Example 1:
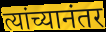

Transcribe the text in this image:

त्यांच्यानंतर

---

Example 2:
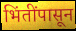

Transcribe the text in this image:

भिंतींपासून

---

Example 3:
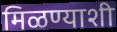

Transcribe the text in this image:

मिळण्याशी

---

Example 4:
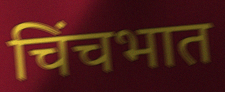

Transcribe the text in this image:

चिंचभात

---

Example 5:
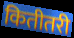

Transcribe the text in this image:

कितीतरी